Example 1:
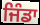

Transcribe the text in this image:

ਜਿੰਡਾ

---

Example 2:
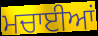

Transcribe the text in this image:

ਮਚਾਈਆਂ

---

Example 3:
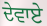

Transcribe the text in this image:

ਦੇਵਾਏ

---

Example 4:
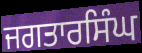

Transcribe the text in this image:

ਜਗਤਾਰਸਿੰਘ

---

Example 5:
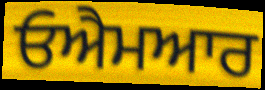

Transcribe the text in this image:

ਓਐਮਆਰ